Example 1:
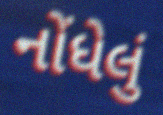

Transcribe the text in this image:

નોંધેલું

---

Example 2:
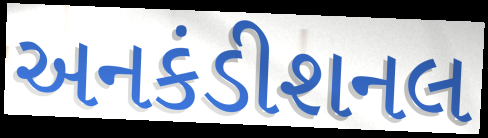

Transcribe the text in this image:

અનકંડીશનલ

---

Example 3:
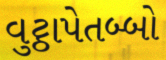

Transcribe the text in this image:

વુટ્ઠાપેતબ્બો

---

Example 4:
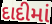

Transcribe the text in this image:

દાદીમાં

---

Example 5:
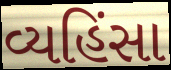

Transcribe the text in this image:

વ્યહિંસા